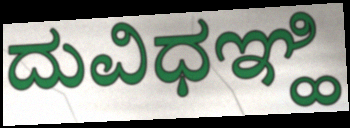
ದುವಿಧಞ್ಹಿ